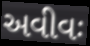
અવીવઃ